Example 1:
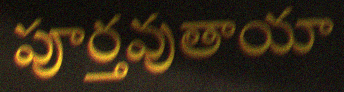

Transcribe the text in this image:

పూర్తవుతాయా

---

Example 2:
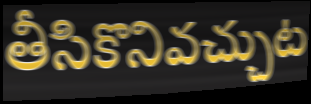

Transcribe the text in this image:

తీసికొనివచ్చుట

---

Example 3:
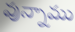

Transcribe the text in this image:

వున్నాము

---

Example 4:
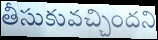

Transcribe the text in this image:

తీసుకువచ్చిందని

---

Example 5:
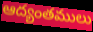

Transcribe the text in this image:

ఆద్యంతములు